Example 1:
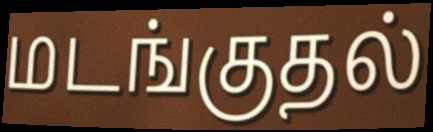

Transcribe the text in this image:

மடங்குதல்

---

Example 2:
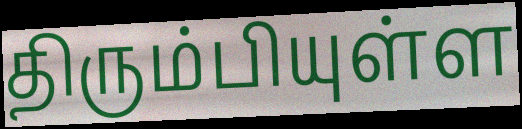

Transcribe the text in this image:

திரும்பியுள்ள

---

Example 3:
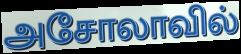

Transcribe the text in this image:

அசோலாவில்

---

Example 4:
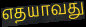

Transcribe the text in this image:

எதயாவது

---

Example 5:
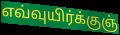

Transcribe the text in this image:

எவ்வுயிர்க்குஞ்